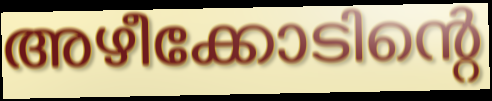
അഴീക്കോടിന്റെ